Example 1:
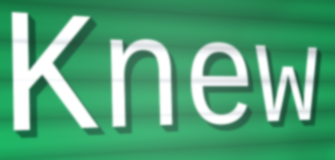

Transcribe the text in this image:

Knew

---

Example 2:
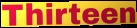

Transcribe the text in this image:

Thirteen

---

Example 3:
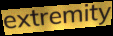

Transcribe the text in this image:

extremity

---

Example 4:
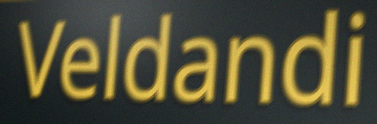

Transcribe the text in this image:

Veldandi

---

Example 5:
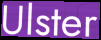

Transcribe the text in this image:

Ulster